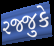
રજ્જુકે